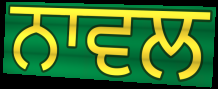
ਨਾਵਲ